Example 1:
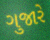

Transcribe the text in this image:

ગુજારે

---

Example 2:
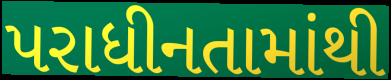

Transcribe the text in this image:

પરાધીનતામાંથી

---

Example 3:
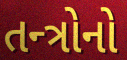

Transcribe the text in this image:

તન્ત્રોનો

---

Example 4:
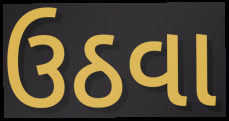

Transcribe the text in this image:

ઉઠવા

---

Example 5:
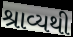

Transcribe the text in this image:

શ્રાવ્યથી